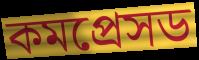
কমপ্রেসড